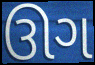
ઊગ